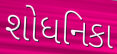
શોધનિકા